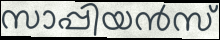
സാപ്പിയൻസ്